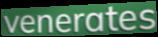
venerates